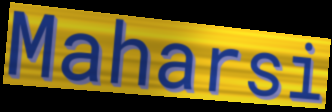
Maharsi